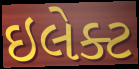
ઇલેક્ટ